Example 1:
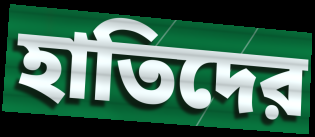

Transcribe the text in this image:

হাতিদের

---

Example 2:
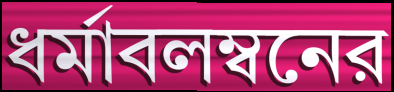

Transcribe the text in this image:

ধর্মাবলম্বনের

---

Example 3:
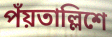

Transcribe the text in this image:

পঁয়তাল্লিশে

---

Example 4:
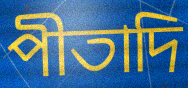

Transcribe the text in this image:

পীতাদি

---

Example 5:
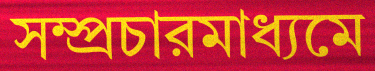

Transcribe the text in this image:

সম্প্রচারমাধ্যমে